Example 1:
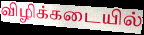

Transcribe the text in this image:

விழிக்கடையில்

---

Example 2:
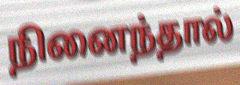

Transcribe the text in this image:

நினைந்தால்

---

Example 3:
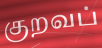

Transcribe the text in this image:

குறவப்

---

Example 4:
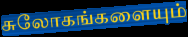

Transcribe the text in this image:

சுலோகங்களையும்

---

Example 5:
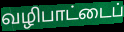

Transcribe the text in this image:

வழிபாட்டைப்